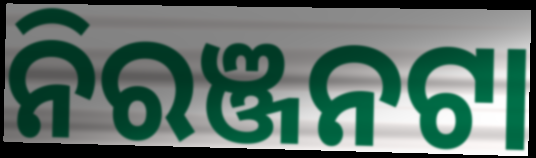
ନିରଞ୍ଜନଟା